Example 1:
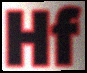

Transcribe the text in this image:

Hf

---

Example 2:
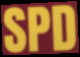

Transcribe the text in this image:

SPD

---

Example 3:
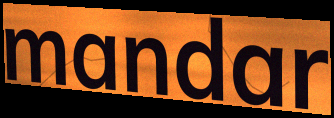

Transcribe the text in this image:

mandar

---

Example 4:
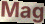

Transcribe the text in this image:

Mag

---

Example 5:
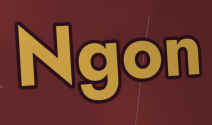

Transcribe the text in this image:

Ngon